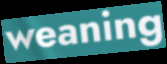
weaning